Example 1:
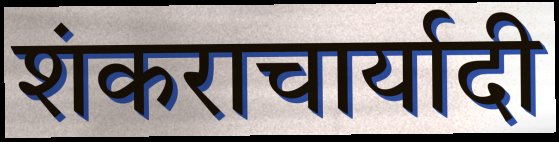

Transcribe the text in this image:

शंकराचार्यादी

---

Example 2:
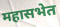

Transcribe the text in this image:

महासभेत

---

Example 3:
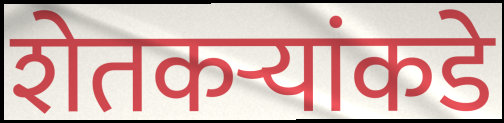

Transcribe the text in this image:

शेतकर्‍यांकडे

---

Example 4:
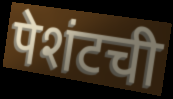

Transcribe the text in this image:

पेशंटची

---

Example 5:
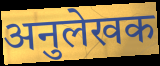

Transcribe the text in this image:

अनुलेखक